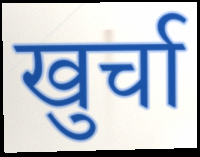
खुर्चा